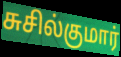
சுசில்குமார்